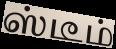
ஸ்டீம்